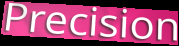
Precision